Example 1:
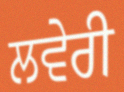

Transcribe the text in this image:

ਲਵੇਰੀ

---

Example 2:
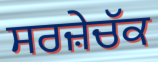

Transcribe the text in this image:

ਸਰਜ਼ੇਚੱਕ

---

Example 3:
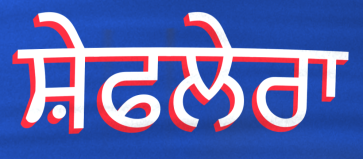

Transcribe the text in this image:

ਸ਼ੇਫਲੇਰਾ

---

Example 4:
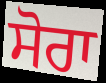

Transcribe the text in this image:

ਸੋਰਾ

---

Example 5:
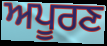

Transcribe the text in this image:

ਅਪੂਰਣ